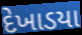
દેખાડયા